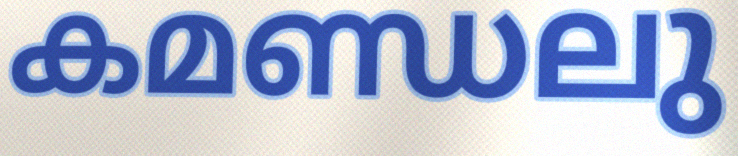
കമണ്ഡലു